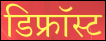
डिफ्रॉस्ट